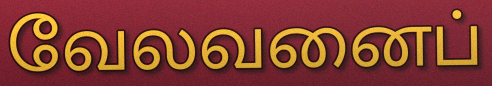
வேலவனைப்